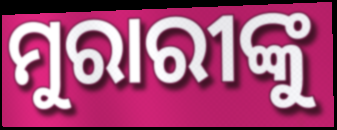
ମୁରାରୀଙ୍କୁ